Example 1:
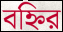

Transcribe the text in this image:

বহ্নির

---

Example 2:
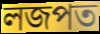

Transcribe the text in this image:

লজপত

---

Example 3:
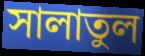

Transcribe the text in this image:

সালাতুল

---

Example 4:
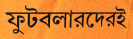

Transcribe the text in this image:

ফুটবলারদেরই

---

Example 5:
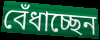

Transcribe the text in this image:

বেঁধাচ্ছেন